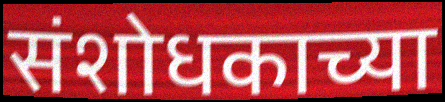
संशोधकाच्या